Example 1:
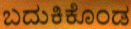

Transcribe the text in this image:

ಬದುಕಿಕೊಂಡ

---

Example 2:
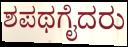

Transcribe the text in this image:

ಶಪಥಗೈದರು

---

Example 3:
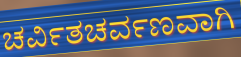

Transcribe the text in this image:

ಚರ್ವಿತಚರ್ವಣವಾಗಿ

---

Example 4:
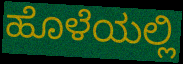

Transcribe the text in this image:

ಹೊಳೆಯಲ್ಲಿ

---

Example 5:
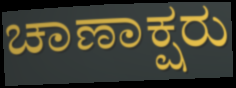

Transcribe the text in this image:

ಚಾಣಾಕ್ಷರು